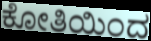
ಕೋತಿಯಿಂದ